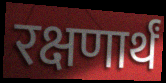
रक्षणार्थं